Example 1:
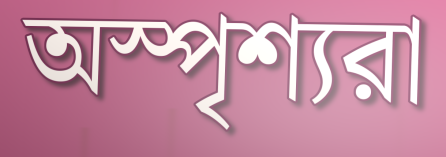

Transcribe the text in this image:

অস্পৃশ্যরা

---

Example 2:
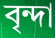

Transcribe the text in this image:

বৃন্দা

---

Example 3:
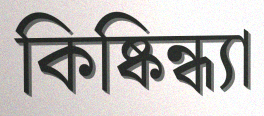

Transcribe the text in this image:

কিষ্কিন্ধ্যা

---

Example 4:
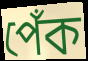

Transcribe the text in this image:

পেঁক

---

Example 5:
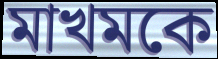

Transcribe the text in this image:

মাখমকে